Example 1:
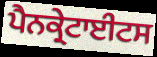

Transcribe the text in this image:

ਪੈਨਕ੍ਰੇਟਾਈਟਸ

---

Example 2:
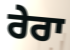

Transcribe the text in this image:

ਰੇਰਾ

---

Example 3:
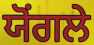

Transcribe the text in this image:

ਯੋਂਗਲੇ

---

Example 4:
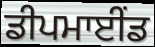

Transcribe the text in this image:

ਡੀਪਮਾਈਂਡ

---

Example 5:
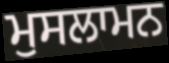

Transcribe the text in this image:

ਮੁਸਲਾਮਨ